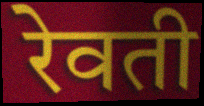
रेवती